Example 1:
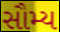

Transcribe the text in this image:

સૌમ્ય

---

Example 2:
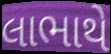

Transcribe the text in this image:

લાભાથે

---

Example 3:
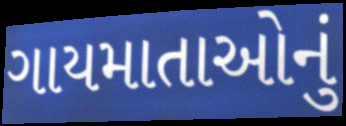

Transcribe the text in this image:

ગાયમાતાઓનું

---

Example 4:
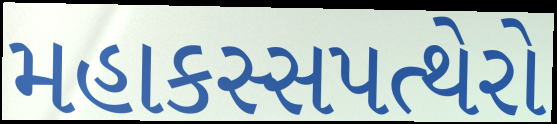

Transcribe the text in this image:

મહાકસ્સપત્થેરો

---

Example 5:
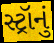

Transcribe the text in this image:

સ્ટ્રૉનું